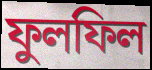
ফুলফিল